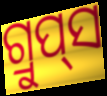
ଗ୍ରୁପ୍‌ସ